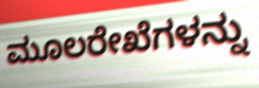
ಮೂಲರೇಖೆಗಳನ್ನು